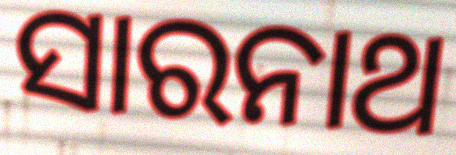
ସାରନାଥ